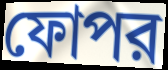
ফোপর